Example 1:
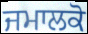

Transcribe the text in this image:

ਜਮਾਲਕੋ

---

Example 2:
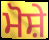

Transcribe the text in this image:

ਮੋਸ਼ੇ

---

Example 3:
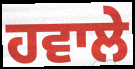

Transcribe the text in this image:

ਹਵਾਲੇ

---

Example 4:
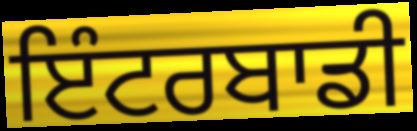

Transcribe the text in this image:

ਇੰਟਰਬਾਡੀ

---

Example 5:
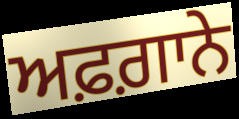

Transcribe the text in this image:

ਅਫ਼ਗ਼ਾਨੇ